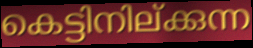
കെട്ടിനില്ക്കുന്ന